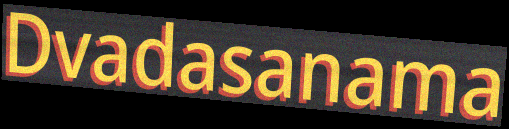
Dvadasanama